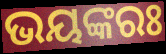
ଭୟଙ୍କରଃ